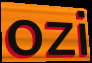
ozi